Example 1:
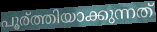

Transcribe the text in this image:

പൂര്ത്തിയാക്കുന്നത്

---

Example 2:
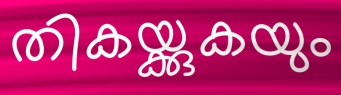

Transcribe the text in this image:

തികയ്ക്കുകയും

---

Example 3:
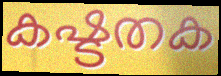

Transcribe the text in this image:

കഷ്ടതക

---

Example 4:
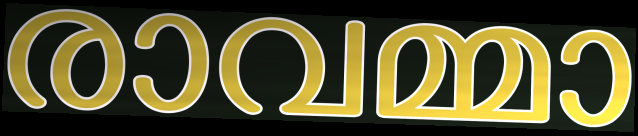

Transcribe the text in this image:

രാവമ്മാ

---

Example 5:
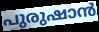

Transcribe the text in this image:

പുരുഷാൻ